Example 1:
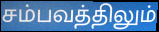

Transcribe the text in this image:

சம்பவத்திலும்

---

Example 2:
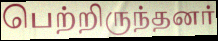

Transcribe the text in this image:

பெற்றிருந்தனர்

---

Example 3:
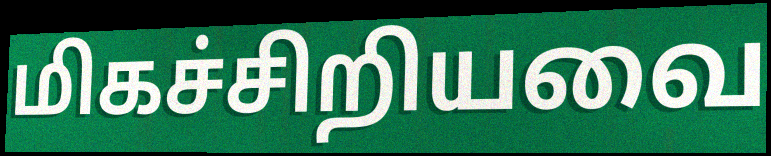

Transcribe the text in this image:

மிகச்சிறியவை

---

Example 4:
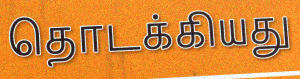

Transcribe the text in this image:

தொடக்கியது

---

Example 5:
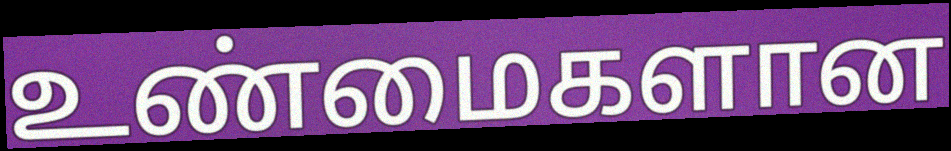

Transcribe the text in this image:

உண்மைகளான